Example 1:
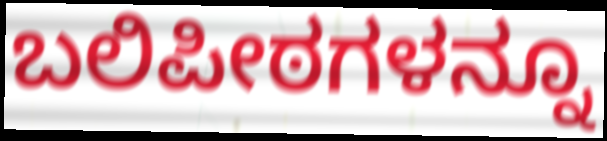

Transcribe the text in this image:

ಬಲಿಪೀಠಗಳನ್ನೂ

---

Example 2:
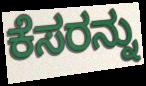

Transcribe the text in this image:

ಕೆಸರನ್ನು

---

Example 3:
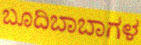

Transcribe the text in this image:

ಬೂದಿಬಾಬಾಗಳ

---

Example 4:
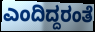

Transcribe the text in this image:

ಎಂದಿದ್ದರಂತೆ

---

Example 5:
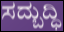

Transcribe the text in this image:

ಸದ್ಬುದ್ಧಿ